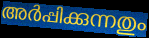
അർപ്പിക്കുന്നതും